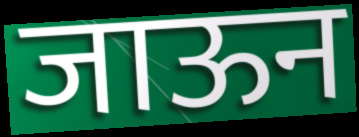
जाऊन